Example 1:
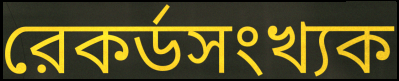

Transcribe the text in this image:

রেকর্ডসংখ্যক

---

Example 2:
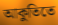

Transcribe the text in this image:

আকুতিতে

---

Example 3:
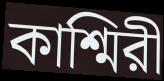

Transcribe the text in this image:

কাশ্মিরী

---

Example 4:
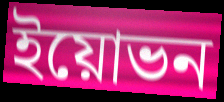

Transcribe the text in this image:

ইয়োভন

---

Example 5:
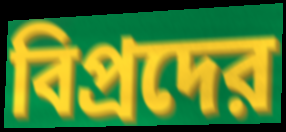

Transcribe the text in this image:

বিপ্রদের